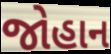
જોહાન